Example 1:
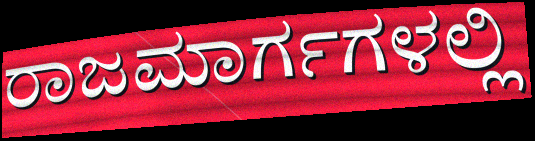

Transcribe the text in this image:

ರಾಜಮಾರ್ಗಗಳಲ್ಲಿ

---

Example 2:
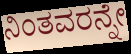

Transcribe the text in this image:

ನಿಂತವರನ್ನೇ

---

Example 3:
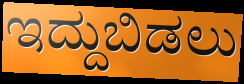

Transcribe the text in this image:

ಇದ್ದುಬಿಡಲು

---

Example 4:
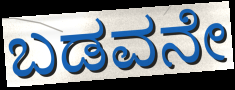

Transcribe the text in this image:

ಬಡವನೇ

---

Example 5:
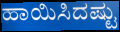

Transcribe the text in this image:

ಹಾಯಿಸಿದಷ್ಟು